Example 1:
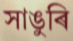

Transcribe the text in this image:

সাঙুৰি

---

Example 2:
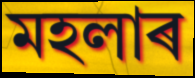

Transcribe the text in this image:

মহলাৰ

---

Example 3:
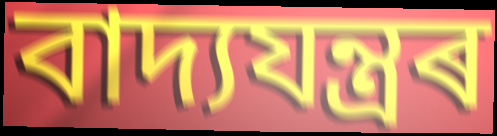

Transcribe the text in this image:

বাদ্যযন্ত্ৰৰ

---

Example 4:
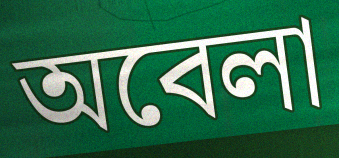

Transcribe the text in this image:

অবেলা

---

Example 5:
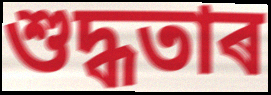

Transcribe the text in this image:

শুদ্ধতাৰ